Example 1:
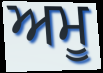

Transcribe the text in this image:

ਅਮੂ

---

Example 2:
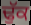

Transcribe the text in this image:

ਢੁੱਕ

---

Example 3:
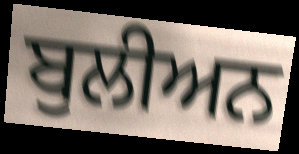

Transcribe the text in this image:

ਬੁਲੀਅਨ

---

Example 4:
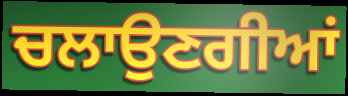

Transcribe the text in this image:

ਚਲਾਉਣਗੀਆਂ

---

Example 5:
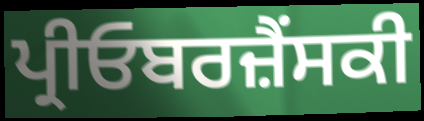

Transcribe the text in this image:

ਪ੍ਰੀਓਬਰਜ਼ੈਂਸਕੀ